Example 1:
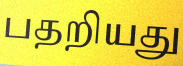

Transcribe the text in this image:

பதறியது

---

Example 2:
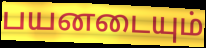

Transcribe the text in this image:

பயனடையும்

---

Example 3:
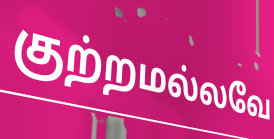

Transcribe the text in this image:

குற்றமல்லவே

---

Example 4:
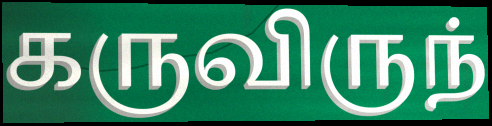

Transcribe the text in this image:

கருவிருந்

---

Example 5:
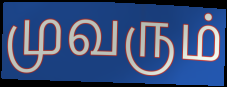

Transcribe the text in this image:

முவரும்